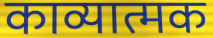
काव्यात्मक